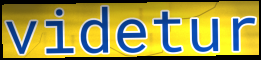
videtur